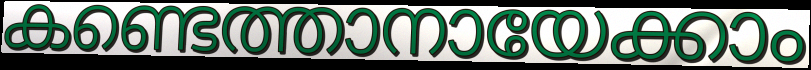
കണ്ടെത്താനായേക്കാം